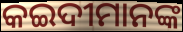
କଇଦୀମାନଙ୍କ